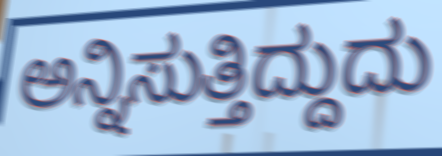
ಅನ್ನಿಸುತ್ತಿದ್ದುದು